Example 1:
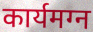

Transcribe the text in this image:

कार्यमग्न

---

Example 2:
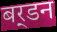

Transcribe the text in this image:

बर्डन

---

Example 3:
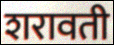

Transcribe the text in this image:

शरावती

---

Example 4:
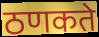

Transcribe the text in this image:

ठणकते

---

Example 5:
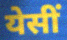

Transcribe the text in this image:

येसीं